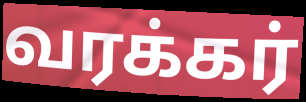
வரக்கர்